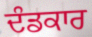
ਦੰਡਕਾਰ